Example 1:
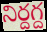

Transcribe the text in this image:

నిర్దగ్ద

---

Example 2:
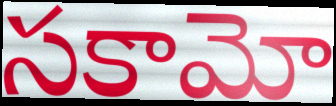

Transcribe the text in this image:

సకామో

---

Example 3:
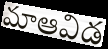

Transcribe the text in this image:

మాఆవిడ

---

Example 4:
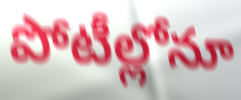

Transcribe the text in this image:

పోటీల్లోనూ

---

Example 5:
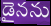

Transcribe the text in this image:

డైనను